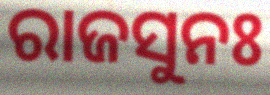
ରାଜସୁନଃ